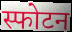
स्फोटन